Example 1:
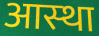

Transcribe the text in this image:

आस्‍था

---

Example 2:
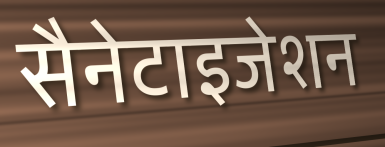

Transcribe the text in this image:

सैनेटाइजेशन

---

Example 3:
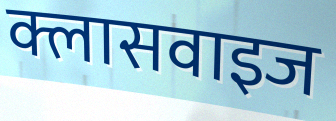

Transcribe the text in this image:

क्लासवाइज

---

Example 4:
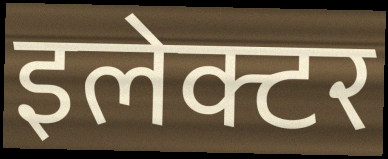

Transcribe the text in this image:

इलेक्टर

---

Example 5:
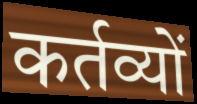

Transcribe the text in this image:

कर्तव्यों